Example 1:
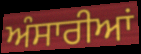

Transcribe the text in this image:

ਅੰਸਾਰੀਆਂ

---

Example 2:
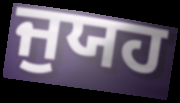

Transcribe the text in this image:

ਜੁਯਹ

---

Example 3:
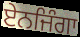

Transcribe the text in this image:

ਏਨਜਿੰਗਾ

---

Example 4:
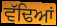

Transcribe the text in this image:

ਵੱਢਿਆਂ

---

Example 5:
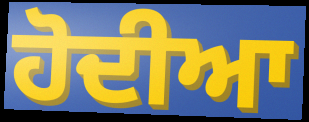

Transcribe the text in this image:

ਹੋਦੀਆ